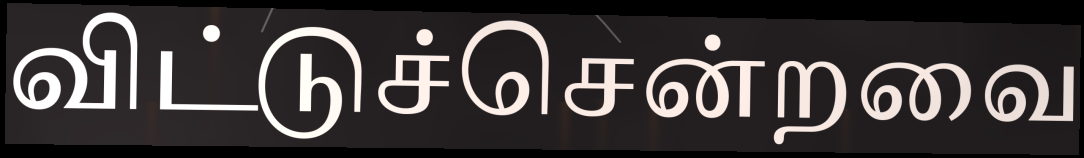
விட்டுச்சென்றவை